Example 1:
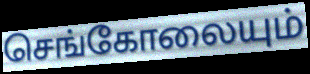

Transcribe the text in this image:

செங்கோலையும்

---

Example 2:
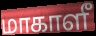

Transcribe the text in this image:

மாகாளீ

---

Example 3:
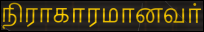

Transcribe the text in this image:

நிராகாரமானவர்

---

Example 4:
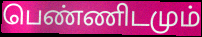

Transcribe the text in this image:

பெண்ணிடமும்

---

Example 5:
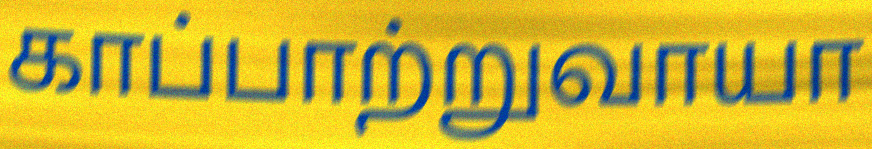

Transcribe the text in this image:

காப்பாற்றுவாயா